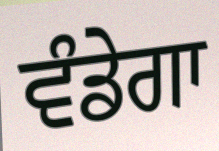
ਵੰਡੇਗਾ